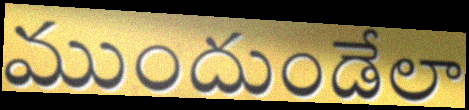
ముందుండేలా